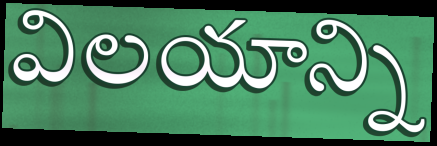
విలయాన్ని